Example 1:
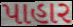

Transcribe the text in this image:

પાહાર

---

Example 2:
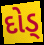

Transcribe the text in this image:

દોડ્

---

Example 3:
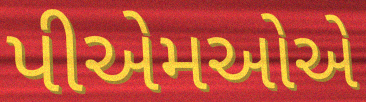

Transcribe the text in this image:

પીએમઓએ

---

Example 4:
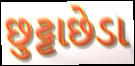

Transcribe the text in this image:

છુટ્ટાછેડા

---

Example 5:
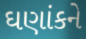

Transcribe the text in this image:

ઘણાંકને